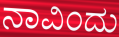
ನಾವಿಂದು